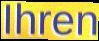
Ihren